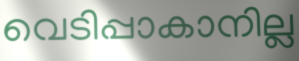
വെടിപ്പാകാനില്ല